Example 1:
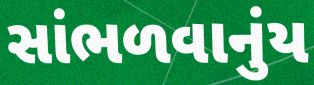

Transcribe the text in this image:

સાંભળવાનુંય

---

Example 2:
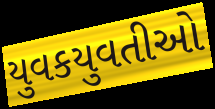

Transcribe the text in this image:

યુવકયુવતીઓ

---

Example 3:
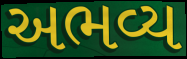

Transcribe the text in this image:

અભવ્ય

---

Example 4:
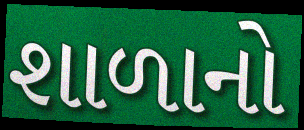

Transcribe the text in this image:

શાળાનો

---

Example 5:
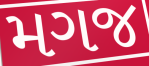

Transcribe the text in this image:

મગજ